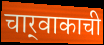
चार्वाकाची